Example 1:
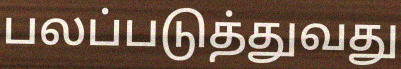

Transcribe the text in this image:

பலப்படுத்துவது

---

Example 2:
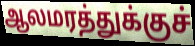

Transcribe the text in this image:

ஆலமரத்துக்குச்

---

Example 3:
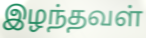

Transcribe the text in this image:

இழந்தவள்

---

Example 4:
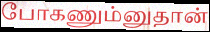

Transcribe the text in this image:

போகணும்னுதான்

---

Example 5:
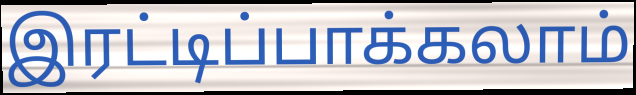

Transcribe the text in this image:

இரட்டிப்பாக்கலாம்